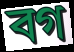
বগ